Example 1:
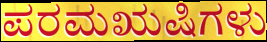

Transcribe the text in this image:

ಪರಮಋಷಿಗಳು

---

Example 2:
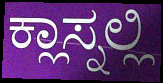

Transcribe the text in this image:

ಕ್ಲಾಸ್ನಲ್ಲಿ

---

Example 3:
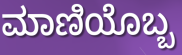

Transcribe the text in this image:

ಮಾಣಿಯೊಬ್ಬ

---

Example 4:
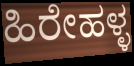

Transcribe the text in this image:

ಹಿರೇಹಳ್ಳ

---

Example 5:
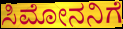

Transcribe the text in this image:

ಸಿಮೋನನಿಗೆ